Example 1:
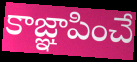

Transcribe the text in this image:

కాజ్ఞాపించే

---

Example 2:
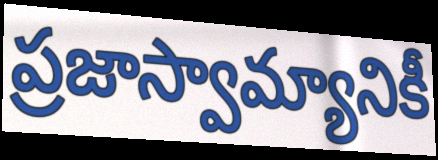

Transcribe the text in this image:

ప్రజాస్వామ్యానికీ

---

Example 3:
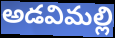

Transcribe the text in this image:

అడవిమల్లి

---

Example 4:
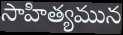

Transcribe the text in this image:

సాహిత్యమున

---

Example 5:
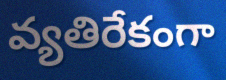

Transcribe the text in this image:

వ్యతిరేకంగా